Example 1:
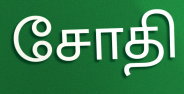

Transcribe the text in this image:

சோதி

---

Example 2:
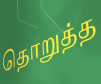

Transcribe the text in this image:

தொறுத்த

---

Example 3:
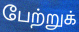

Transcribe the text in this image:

பேற்றுக்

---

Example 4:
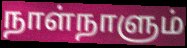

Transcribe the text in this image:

நாள்நாளும்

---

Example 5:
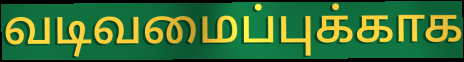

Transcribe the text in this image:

வடிவமைப்புக்காக